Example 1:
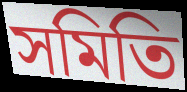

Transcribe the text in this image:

সমিতি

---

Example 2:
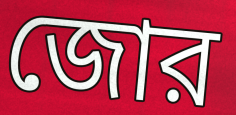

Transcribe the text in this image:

জোর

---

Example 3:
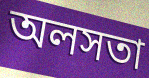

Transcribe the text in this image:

অলসতা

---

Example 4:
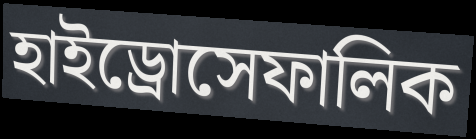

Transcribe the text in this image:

হাইড্রোসেফালিক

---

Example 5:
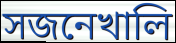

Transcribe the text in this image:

সজনেখালি